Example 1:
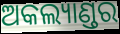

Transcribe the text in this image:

ଅକଲ୍ୟାଣ୍ଡର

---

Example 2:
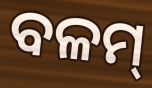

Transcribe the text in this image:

ବଳମ୍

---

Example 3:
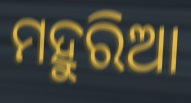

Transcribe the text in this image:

ମହୁରିଆ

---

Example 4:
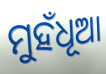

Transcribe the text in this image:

ମୁହଁଧୂଆ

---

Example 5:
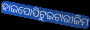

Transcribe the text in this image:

ହାଇପୋପିଟୁଇଟାରୀଜିମ